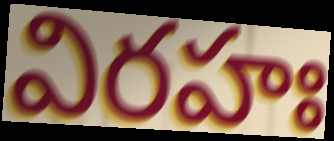
విరహః